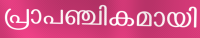
പ്രാപഞ്ചികമായി